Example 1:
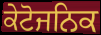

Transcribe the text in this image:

ਕੇਟੋਜਨਿਕ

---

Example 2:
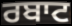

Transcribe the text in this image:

ਰਬਾਟ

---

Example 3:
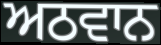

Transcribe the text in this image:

ਅਠਵਾਨ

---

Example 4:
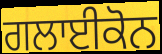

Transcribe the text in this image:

ਗਲਾਈਕੋਨ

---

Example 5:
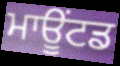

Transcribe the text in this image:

ਮਾਊਂਟਡ